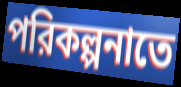
পরিকল্পনাতে